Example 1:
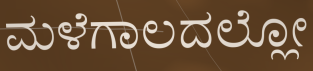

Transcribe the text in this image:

ಮಳೆಗಾಲದಲ್ಲೋ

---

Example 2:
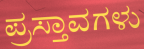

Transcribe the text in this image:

ಪ್ರಸ್ತಾವಗಳು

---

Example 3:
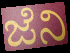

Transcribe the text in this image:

ಜೆನಿ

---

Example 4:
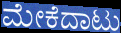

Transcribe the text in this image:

ಮೇಕೆದಾಟು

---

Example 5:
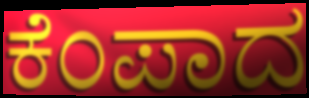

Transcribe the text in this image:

ಕೆಂಪಾದ